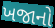
ખજાનો